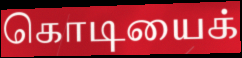
கொடியைக்